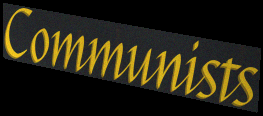
Communists